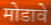
मोडावे